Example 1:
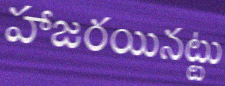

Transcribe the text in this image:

హాజరయినట్టు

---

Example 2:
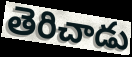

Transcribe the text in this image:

తెరిచాడు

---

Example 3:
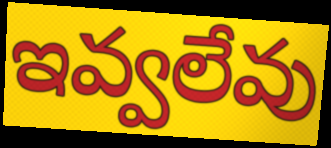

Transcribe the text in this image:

ఇవ్వలేవు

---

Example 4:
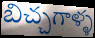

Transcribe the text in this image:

బిచ్చగాళ్ళ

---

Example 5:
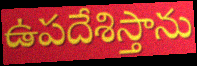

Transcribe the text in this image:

ఉపదేశిస్తాను